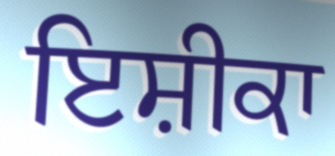
ਇਸ਼ੀਕਾ